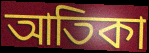
আতিকা